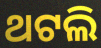
ଥଟଲି